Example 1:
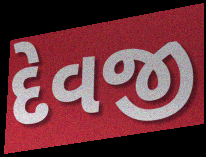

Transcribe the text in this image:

દેવજી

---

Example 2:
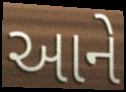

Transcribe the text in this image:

આને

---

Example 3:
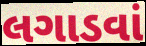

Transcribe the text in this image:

લગાડવાં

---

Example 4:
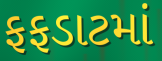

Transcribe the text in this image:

ફફડાટમાં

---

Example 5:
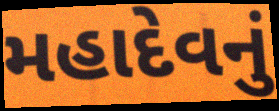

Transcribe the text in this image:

મહાદેવનું